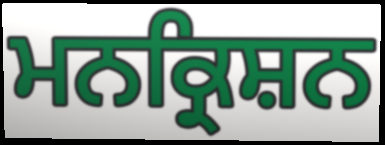
ਮਨਕ੍ਰਿਸ਼ਨ